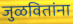
जुळवितांना